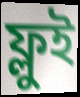
ফ্লুই